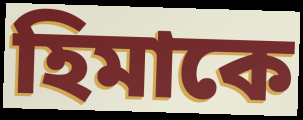
হিমাকে